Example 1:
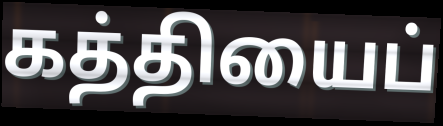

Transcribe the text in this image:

கத்தியைப்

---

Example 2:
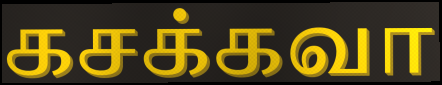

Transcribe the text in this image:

கசக்கவா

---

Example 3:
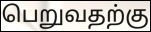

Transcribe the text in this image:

பெறுவதற்கு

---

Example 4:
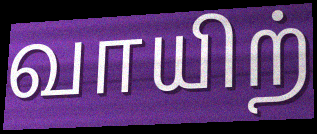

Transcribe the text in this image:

வாயிற்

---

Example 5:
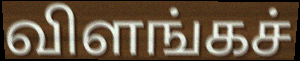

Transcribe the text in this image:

விளங்கச்